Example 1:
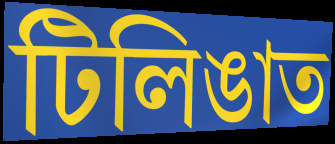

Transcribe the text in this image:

টিলিঙাত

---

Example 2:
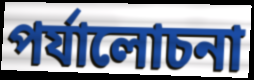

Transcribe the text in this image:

পৰ্যালোচনা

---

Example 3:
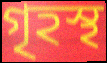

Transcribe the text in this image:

গৃহস্থ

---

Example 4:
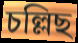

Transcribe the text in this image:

চল্লিছ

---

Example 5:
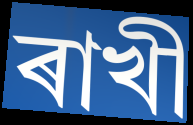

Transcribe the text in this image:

ৰাখী